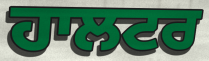
ਹਾਲਟਰ